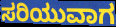
ಸರಿಯುವಾಗ